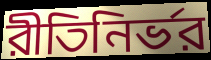
রীতিনির্ভর